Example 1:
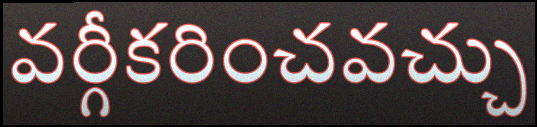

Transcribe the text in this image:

వర్గీకరించవచ్చు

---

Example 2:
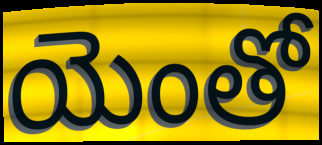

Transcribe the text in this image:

యెంతో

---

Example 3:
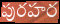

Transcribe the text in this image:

పురహర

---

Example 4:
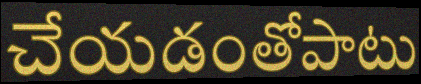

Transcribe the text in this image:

చేయడంతోపాటు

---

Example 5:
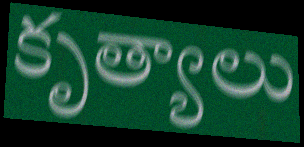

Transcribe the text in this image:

కృత్యాలు